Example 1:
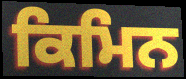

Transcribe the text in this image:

ਕਿਮਿਨ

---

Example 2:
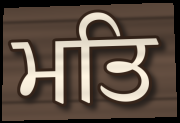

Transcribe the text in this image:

ਮਤਿ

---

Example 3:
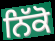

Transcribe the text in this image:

ਨਿੱਕੋ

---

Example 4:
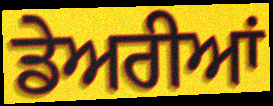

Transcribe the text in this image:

ਡੇਅਰੀਆਂ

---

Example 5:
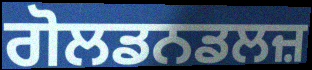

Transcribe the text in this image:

ਗੋਲਡਨਡਲਜ਼